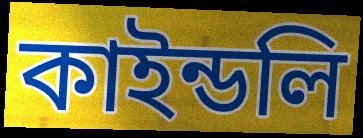
কাইন্ডলি